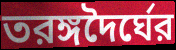
তরঙ্গদৈর্ঘের